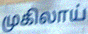
முகிலாய்